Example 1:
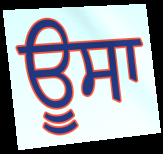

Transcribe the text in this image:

ਊਸਾ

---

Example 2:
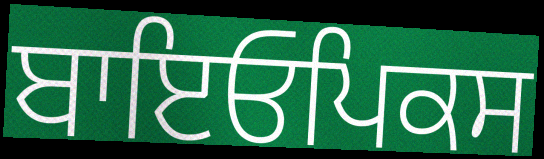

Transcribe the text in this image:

ਬਾਇਓਪਿਕਸ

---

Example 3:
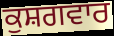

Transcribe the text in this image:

ਕੁਸ਼ਗਵਾਰ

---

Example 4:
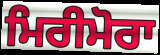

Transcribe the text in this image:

ਮਿਰੀਮੋਰਾ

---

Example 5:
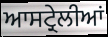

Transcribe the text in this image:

ਆਸਟ੍ਰੇਲੀਆਂ